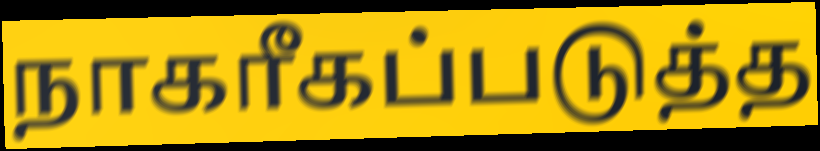
நாகரீகப்படுத்த